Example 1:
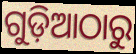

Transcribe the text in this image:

ଗୁଡ଼ିଆଠାରୁ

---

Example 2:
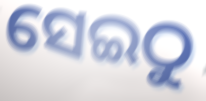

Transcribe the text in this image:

ସେଇଠୁ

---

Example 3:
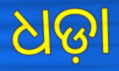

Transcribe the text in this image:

ଧଡ଼ା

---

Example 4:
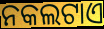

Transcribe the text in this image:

ନକଲଟାଏ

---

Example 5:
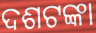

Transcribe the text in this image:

ଦଶଟଙ୍କା